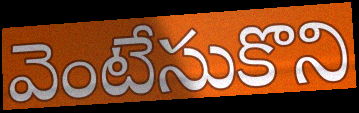
వెంటేసుకొని